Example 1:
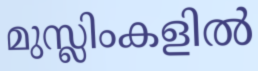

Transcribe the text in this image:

മുസ്ലിംകളിൽ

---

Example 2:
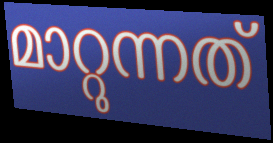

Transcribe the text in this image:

മാറ്റുന്നത്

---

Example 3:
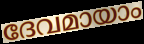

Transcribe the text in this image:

ദേവമായാം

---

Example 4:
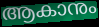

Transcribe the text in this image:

ആകാനും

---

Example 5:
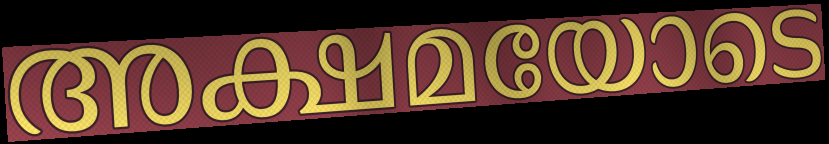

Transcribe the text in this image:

അക്ഷമയോടെ